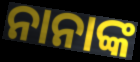
ନାନାଙ୍କ